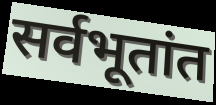
सर्वभूतांत